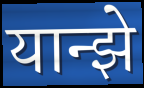
यान्झे